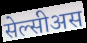
सेल्सीअस